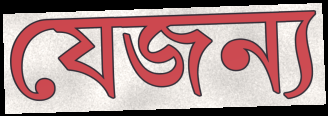
যেজন্য